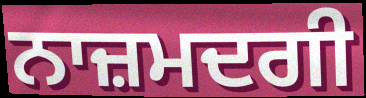
ਨਾਜ਼ਮਦਗੀ